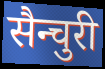
सैन्चुरी